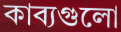
কাব্যগুলো